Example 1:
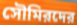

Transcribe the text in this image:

সৌমিরদের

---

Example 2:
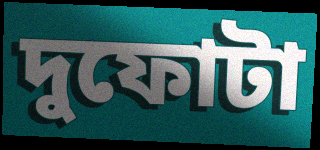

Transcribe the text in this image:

দুফোটা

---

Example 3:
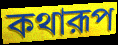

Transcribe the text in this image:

কথারূপ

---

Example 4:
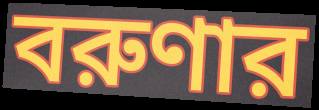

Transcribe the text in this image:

বরুণার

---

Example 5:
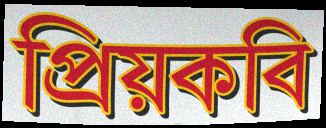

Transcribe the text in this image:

প্রিয়কবি